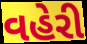
વહેરી